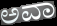
ಅವಾ